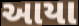
આયા